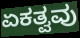
ಏಕತ್ವವು